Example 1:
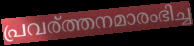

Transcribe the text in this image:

പ്രവര്ത്തനമാരംഭിച്ച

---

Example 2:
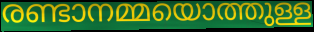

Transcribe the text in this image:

രണ്ടാനമ്മയൊത്തുള്ള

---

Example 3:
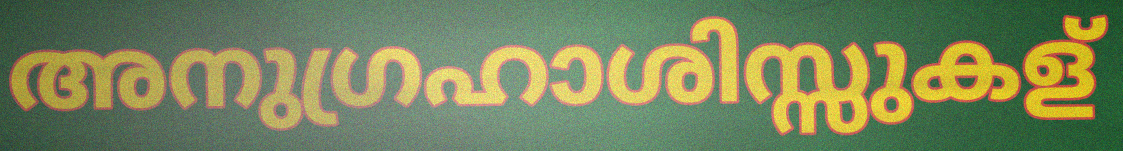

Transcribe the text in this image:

അനുഗ്രഹാശിസ്സുകള്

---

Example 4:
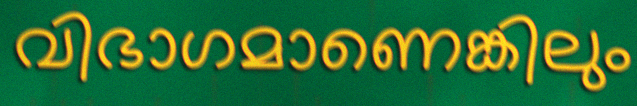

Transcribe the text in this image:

വിഭാഗമാണെങ്കിലും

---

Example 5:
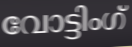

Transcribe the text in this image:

വോട്ടിംഗ്